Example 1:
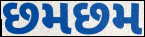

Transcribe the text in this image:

છમછમ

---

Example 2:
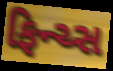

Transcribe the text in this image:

ફિન્ચ્સ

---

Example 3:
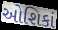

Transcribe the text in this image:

ઓશિકાં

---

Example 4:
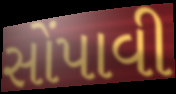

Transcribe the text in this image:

સોંપાવી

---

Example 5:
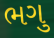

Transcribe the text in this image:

ભગુ